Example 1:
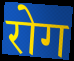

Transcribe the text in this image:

रोग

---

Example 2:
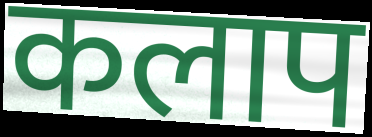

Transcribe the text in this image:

कलाप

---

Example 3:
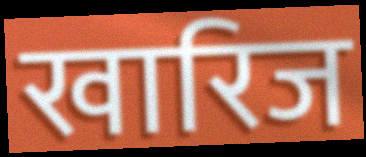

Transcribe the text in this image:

खारिज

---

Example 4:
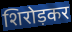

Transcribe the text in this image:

शिरोड़कर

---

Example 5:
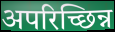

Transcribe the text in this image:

अपरिच्छिन्न